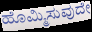
ಹೊಮ್ಮಿಸುವುದೇ